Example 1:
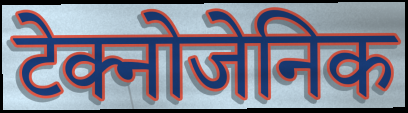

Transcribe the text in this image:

टेक्नोजेनिक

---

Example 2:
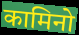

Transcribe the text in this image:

कामिनो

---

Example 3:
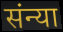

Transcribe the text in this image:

संन्या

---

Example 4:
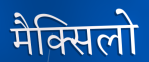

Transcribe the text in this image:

मैक्सिलो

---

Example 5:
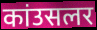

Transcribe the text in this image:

कांउसलर